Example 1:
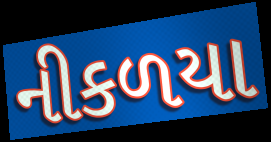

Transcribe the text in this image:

નીકળયા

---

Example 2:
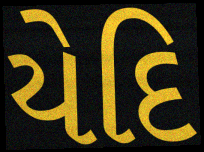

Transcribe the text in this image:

યેદિ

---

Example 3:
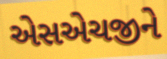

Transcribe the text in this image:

એસએચજીને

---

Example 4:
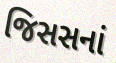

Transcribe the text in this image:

જિસસનાં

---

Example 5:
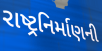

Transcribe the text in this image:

રાષ્ટ્રનિર્માણની